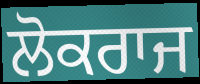
ਲੋਕਰਾਜ